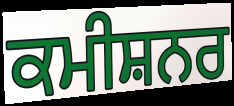
ਕਮੀਸ਼ਨਰ